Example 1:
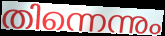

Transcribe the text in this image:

തിന്നെന്നും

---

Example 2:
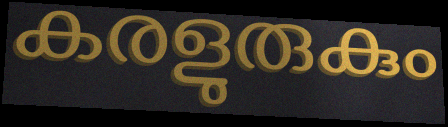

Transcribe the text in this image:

കരളുരുകും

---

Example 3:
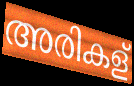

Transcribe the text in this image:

അരികള്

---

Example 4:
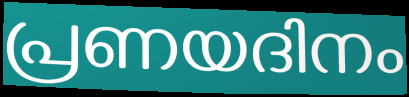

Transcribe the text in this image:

പ്രണയദിനം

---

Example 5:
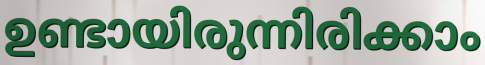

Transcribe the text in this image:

ഉണ്ടായിരുന്നിരിക്കാം